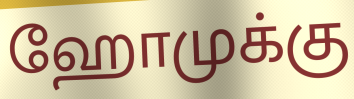
ஹோமுக்கு